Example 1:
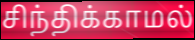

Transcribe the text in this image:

சிந்திக்காமல்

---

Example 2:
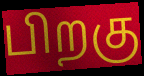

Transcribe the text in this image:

பிறகு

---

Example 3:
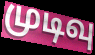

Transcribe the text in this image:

முடிவு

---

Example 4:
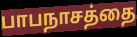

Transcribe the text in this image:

பாபநாசத்தை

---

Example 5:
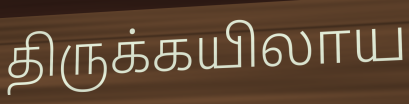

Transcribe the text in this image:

திருக்கயிலாய